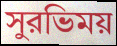
সুরভিময়